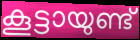
കൂട്ടായുണ്ട്